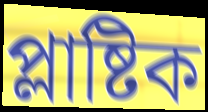
প্লাষ্টিক